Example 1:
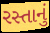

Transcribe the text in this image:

રસ્તાનું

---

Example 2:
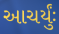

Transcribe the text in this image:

આચર્યુંઃ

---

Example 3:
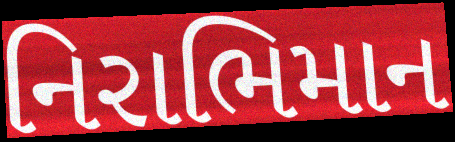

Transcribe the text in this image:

નિરાભિમાન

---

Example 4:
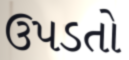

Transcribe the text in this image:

ઉપડતો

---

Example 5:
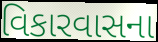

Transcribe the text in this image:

વિકારવાસના